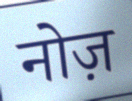
नोज़